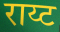
राय्ट